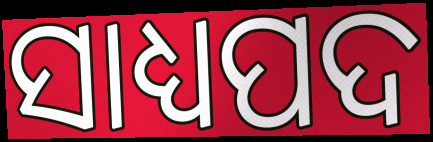
ସାଧ୍ଯପଦ